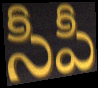
సీపీ